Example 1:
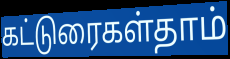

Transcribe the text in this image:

கட்டுரைகள்தாம்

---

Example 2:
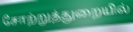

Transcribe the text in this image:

சோற்றுத்துறையில்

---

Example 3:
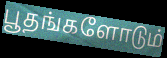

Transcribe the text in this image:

பூதங்களோடும்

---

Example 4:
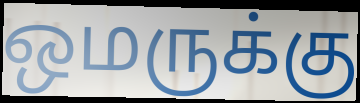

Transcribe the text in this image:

ஒமருக்கு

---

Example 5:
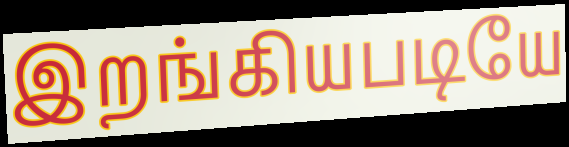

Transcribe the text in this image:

இறங்கியபடியே